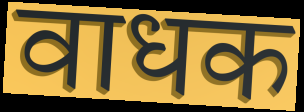
वाधक